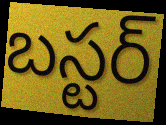
బస్టర్